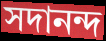
সদানন্দ